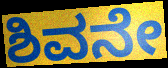
ಶಿವನೇ